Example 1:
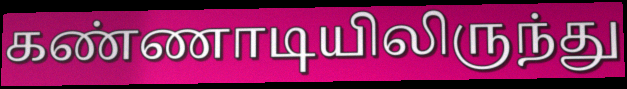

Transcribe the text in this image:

கண்ணாடியிலிருந்து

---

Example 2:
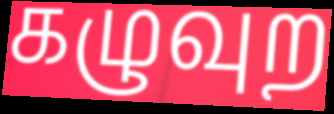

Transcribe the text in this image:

கழுவுற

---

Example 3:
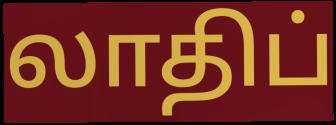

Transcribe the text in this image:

லாதிப்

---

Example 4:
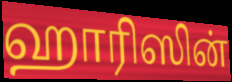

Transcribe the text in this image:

ஹாரிஸின்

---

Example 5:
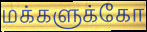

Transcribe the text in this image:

மக்களுக்கோ